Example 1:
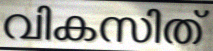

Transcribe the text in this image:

വികസിത്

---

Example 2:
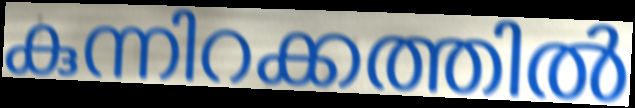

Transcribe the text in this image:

കുന്നിറക്കത്തിൽ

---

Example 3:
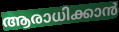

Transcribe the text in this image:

ആരാധിക്കാൻ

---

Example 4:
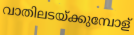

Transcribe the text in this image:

വാതിലടയ്ക്കുമ്പോള്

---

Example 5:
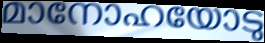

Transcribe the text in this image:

മാനോഹയോടു